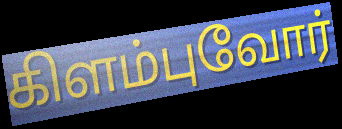
கிளம்புவோர்